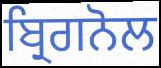
ਬ੍ਰਿਗਨੋਲ